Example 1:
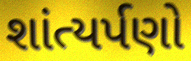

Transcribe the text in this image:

શાંત્યર્પણો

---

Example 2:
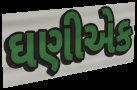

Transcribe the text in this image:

ઘણીએક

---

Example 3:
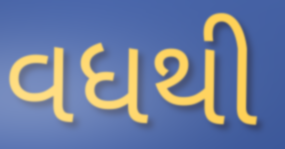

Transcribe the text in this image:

વધથી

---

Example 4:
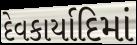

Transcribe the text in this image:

દેવકાર્યાદિમાં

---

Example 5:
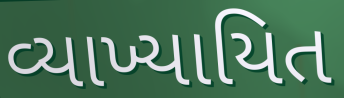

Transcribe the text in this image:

વ્યાખ્યાયિત